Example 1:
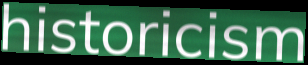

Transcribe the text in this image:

historicism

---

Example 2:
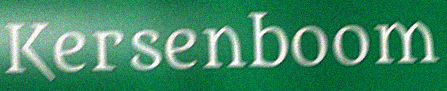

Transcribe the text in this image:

Kersenboom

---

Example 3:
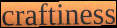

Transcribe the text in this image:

craftiness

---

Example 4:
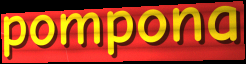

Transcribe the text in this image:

pompona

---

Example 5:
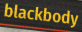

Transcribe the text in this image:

blackbody